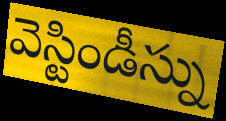
వెస్టిండీస్ను